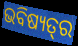
ଭବିଷ୍ୟତ୍‌ର